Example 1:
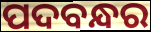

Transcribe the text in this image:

ପଦବନ୍ଧର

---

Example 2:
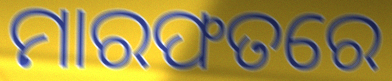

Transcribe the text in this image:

ମାରଫତରେ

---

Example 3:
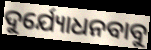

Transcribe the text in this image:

ଦୁର୍ଯ୍ୟୋଧନବାବୁ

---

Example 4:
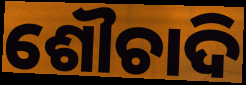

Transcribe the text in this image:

ଶୌଚାଦି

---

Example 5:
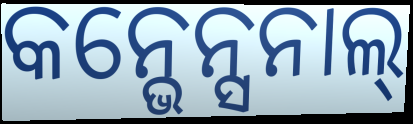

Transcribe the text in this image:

କନ୍ଭେନ୍ସନାଲ୍